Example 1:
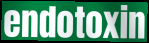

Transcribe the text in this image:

endotoxin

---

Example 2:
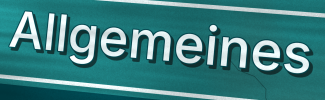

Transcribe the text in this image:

Allgemeines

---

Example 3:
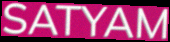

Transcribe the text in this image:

SATYAM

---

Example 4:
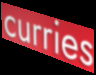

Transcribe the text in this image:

curries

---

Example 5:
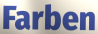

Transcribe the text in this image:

Farben